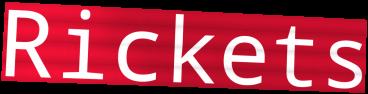
Rickets